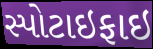
સ્પોટાઇફાઇ